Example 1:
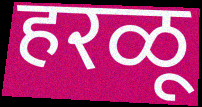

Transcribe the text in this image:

हरळू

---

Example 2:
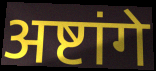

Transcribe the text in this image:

अष्टांगे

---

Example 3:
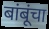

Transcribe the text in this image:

बांबूंचा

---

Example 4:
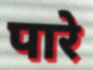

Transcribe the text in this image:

पारे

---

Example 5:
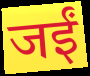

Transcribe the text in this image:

जईं